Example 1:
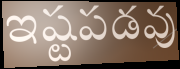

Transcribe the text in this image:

ఇష్టపడవు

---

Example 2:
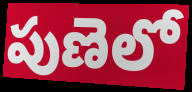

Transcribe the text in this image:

పుణెలో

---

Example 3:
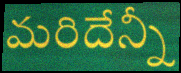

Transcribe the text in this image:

మరిదేన్నీ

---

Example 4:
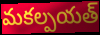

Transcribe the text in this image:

మకల్పయత్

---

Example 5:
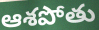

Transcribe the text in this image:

ఆశపోతు